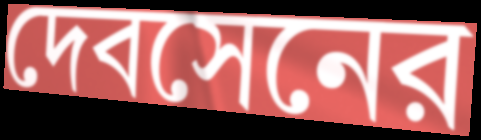
দেবসেনের